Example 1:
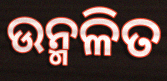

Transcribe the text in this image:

ଉନ୍ମଳିତ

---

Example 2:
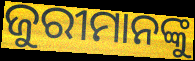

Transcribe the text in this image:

ଜୁରୀମାନଙ୍କୁ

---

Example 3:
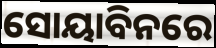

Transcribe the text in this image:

ସୋୟାବିନରେ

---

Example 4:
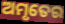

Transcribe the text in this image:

ଅମୃତେର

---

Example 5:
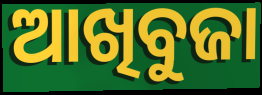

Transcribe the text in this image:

ଆଖିବୁଜା